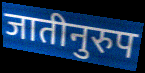
जातीनुरुप